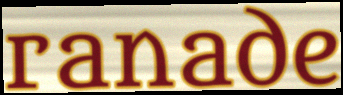
ranade